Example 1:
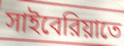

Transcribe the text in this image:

সাইবেরিয়াতে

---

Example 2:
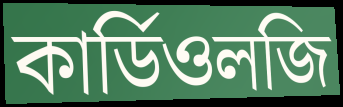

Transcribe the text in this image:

কার্ডিওলজি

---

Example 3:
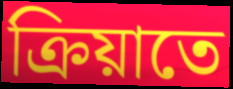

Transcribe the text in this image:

ক্রিয়াতে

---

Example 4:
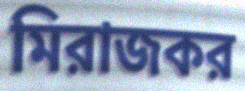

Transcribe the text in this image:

মিরাজকর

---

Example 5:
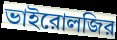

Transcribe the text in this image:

ভাইরোলজির